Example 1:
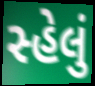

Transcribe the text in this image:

સ્હેલું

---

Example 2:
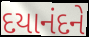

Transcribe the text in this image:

દયાનંદને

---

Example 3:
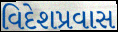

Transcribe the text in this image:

વિદેશપ્રવાસ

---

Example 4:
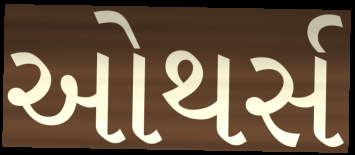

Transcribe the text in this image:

ઓથર્સ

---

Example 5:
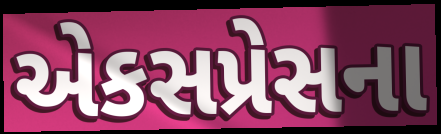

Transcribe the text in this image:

એકસપ્રેસના